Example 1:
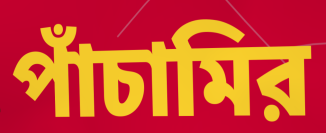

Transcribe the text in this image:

পাঁচামির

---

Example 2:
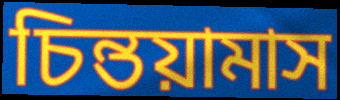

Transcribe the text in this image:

চিন্তয়ামাস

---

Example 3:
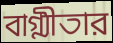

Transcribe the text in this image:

বাগ্মীতার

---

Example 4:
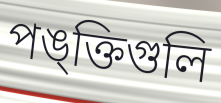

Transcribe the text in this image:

পঙ্ক্তিগুলি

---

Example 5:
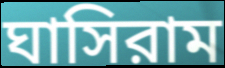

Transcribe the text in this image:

ঘাসিরাম